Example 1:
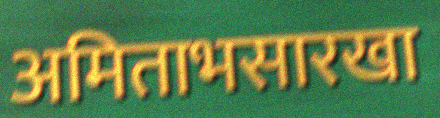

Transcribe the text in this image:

अमिताभसारखा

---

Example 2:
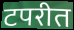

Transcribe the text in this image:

टपरीत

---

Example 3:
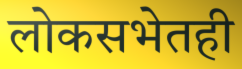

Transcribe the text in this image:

लोकसभेतही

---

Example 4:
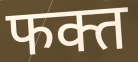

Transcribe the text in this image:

फक्‍त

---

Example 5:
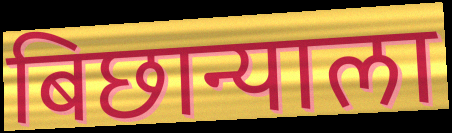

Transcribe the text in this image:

बिछान्याला